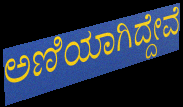
ಅಣಿಯಾಗಿದ್ದೇವೆ